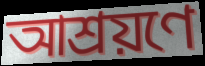
আশ্রয়ণে